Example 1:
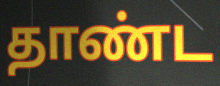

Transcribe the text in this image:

தாண்ட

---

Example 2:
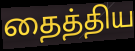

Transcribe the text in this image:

தைத்திய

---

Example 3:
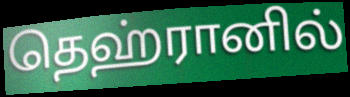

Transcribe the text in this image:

தெஹ்ரானில்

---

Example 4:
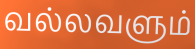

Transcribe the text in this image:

வல்லவளும்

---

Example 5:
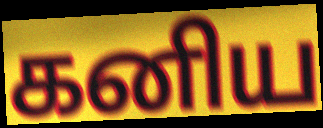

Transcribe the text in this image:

கனிய